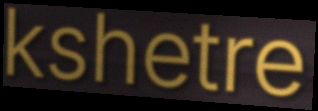
kshetre